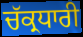
ਚੱਕ੍ਰਧਾਰੀ